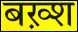
बख़्श